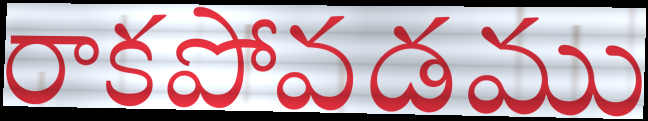
రాకపోవడము